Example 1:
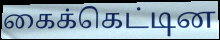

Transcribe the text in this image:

கைக்கெட்டின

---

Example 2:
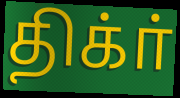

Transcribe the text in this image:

திக்ர்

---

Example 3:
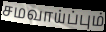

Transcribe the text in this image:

சமவாய்ப்பும்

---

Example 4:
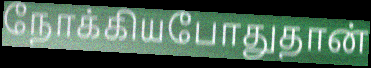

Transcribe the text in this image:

நோக்கியபோதுதான்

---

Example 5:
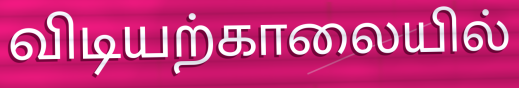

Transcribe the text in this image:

விடியற்காலையில்